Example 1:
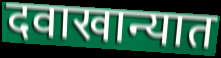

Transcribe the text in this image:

दवाखान्यात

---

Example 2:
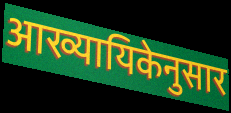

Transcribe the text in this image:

आख्यायिकेनुसार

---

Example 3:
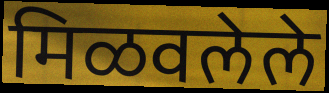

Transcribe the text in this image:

मिळवलेले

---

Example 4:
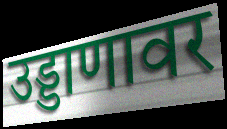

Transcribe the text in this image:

उड्डाणावर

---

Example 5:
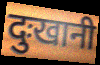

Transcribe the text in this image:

दुःखानी